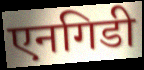
एनगिडी